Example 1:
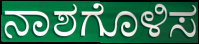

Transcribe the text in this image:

ನಾಶಗೊಳಿಸ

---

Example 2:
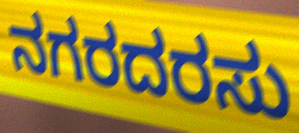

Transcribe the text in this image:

ನಗರದರಸು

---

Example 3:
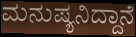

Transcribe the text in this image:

ಮನುಷ್ಯನಿದ್ದಾನೆ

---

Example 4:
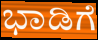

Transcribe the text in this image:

ಭಾಡಿಗೆ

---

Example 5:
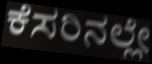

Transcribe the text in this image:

ಕೆಸರಿನಲ್ಲೇ